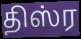
திஸ்ர